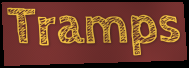
Tramps